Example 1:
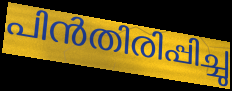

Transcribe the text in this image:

പിൻതിരിപ്പിച്ചു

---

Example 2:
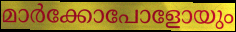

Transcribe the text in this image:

മാർക്കോപോളോയും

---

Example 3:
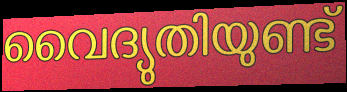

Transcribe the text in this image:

വൈദ്യുതിയുണ്ട്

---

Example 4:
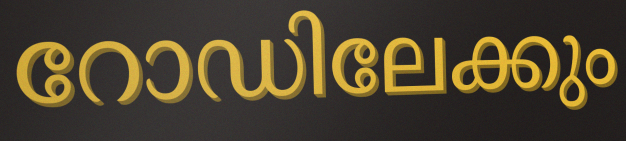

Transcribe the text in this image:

റോഡിലേക്കും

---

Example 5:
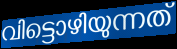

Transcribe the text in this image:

വിട്ടൊഴിയുന്നത്